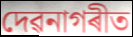
দেৱনাগৰীত